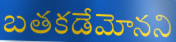
బతకడేమోనని